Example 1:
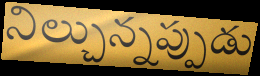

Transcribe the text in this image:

నిల్చున్నప్పుడు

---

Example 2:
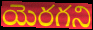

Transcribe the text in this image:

యెరగని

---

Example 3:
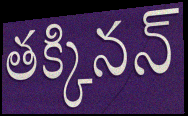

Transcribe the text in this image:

తక్కినన్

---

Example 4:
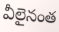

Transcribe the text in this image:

వీలైనంత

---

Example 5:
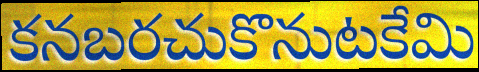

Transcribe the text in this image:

కనబరచుకొనుటకేమి